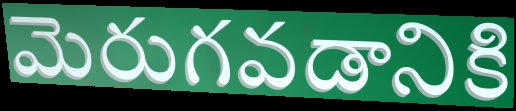
మెరుగవడానికి